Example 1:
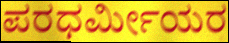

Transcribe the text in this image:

ಪರಧರ್ಮೀಯರ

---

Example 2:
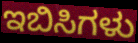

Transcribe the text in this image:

ಇಬಿಸಿಗಳು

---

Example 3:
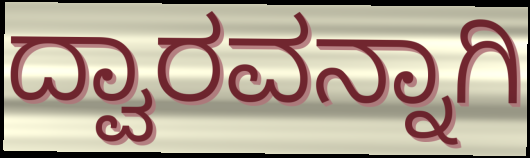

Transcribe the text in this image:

ದ್ವಾರವನ್ನಾಗಿ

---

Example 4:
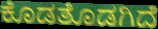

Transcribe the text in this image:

ಕೊಡತೊಡಗಿದೆ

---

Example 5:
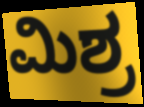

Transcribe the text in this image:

ಮಿಶ್ರ